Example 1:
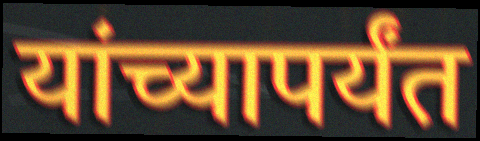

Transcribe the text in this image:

यांच्यापर्यंत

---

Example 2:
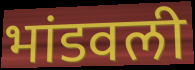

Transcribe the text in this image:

भांडवली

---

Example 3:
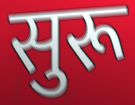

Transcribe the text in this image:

सुरू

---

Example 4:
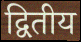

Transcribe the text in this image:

द्वितीय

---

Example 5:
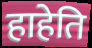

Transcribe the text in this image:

हाहेति